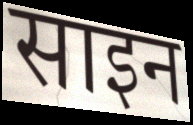
साइन